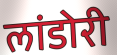
लांडोरी